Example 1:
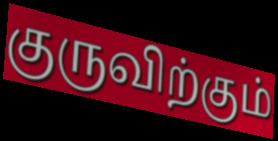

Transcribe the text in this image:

குருவிற்கும்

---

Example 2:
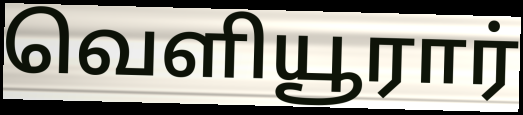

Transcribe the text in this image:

வெளியூரார்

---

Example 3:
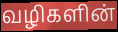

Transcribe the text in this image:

வழிகளின்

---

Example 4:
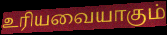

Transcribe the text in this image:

உரியவையாகும்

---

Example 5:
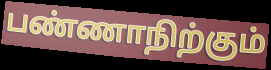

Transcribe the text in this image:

பண்ணாநிற்கும்